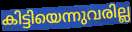
കിട്ടിയെന്നുവരില്ല